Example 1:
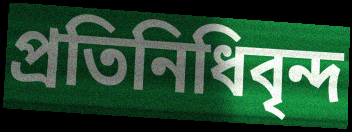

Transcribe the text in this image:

প্রতিনিধিবৃন্দ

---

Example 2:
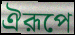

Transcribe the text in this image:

ঐরূপে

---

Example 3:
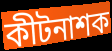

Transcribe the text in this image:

কীটনাশক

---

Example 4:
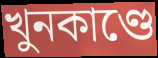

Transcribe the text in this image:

খুনকাণ্ডে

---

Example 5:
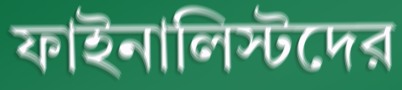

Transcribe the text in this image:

ফাইনালিস্টদের